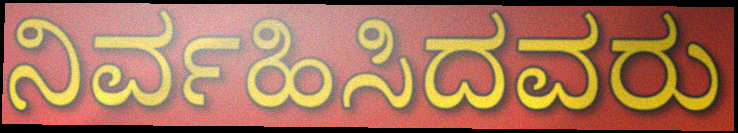
ನಿರ್ವಹಿಸಿದವರು